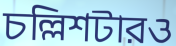
চল্লিশটারও